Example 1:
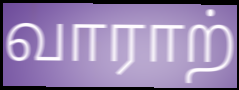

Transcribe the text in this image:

வாராற்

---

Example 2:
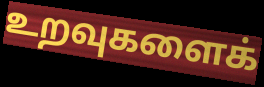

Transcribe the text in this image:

உறவுகளைக்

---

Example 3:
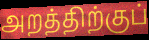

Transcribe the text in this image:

அறத்திற்குப்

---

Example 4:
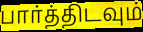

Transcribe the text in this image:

பார்த்திடவும்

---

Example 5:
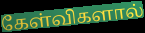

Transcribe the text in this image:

கேள்விகளால்